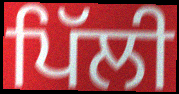
ਪਿੱਲੀ